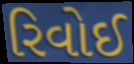
રિવોઈ